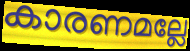
കാരണമല്ലേ